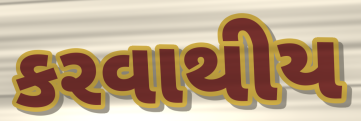
કરવાથીય